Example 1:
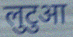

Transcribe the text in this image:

लुटुआ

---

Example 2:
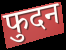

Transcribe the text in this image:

फुदन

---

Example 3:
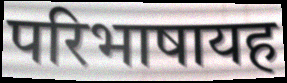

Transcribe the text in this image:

परिभाषायह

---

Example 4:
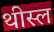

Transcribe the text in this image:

थीस्ल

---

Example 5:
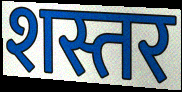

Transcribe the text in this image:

शस्तर